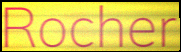
Rocher